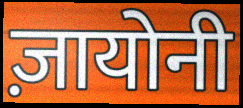
ज़ायोनी